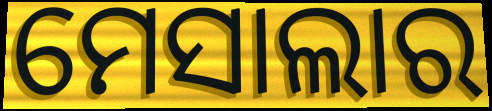
ମେସାଲାର